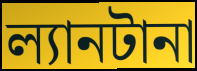
ল্যানটানা